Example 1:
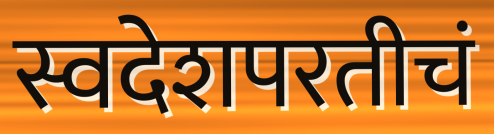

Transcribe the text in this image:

स्वदेशपरतीचं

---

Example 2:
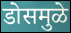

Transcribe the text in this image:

डोसमुळे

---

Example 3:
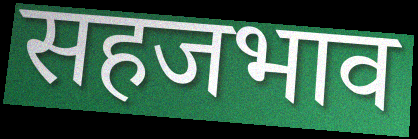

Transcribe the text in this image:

सहजभाव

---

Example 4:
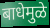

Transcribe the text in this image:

बाधेमुळे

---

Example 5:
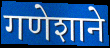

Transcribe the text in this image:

गणेशाने